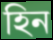
হিন